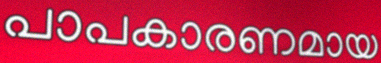
പാപകാരണമായ